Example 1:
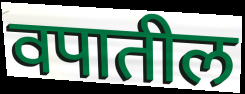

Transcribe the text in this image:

वपातील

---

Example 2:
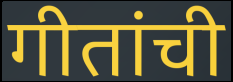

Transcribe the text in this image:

गीतांची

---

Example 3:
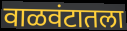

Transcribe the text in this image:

वाळवंटातला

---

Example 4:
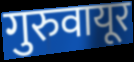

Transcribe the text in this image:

गुरुवायूर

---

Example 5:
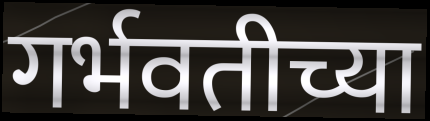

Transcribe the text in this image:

गर्भवतीच्या